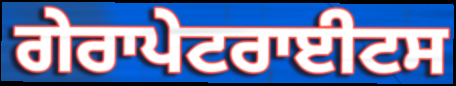
ਗੇਰਾਪੇਟਰਾਈਟਸ